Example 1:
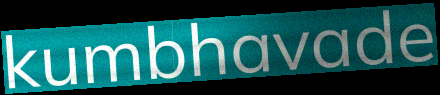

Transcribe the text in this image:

kumbhavade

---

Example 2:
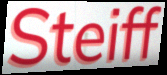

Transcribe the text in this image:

Steiff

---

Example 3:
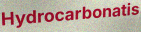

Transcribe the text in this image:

Hydrocarbonatis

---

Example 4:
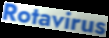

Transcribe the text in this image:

Rotavirus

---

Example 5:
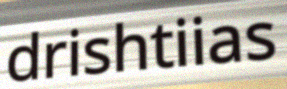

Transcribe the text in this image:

drishtiias